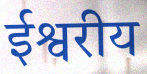
ईश्वरीय